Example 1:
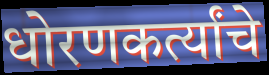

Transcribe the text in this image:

धोरणकर्त्यांचे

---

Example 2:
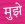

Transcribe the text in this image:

मुझे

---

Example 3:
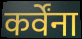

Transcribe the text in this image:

कर्वेंना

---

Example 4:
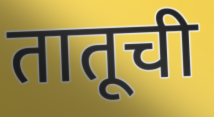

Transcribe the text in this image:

तातूची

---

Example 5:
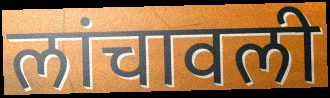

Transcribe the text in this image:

लांचावली